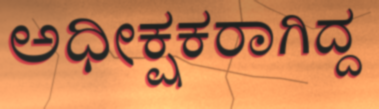
ಅಧೀಕ್ಷಕರಾಗಿದ್ದ